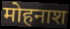
मोहनाश